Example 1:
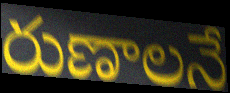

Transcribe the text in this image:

రుణాలనే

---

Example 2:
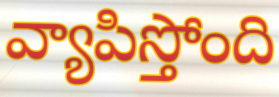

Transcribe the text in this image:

వ్యాపిస్తోంది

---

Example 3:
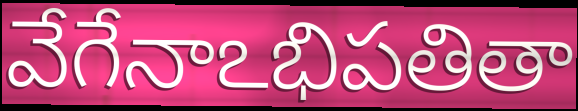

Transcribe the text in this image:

వేగేనాఽభిపతితా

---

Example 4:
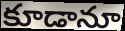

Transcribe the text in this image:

కూడానూ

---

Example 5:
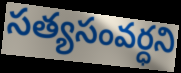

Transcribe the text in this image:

సత్యసంవర్ధని